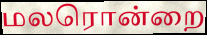
மலரொன்றை